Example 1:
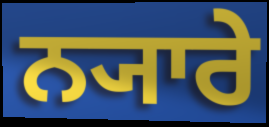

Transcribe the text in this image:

ਨ੍ਯਾਰੇ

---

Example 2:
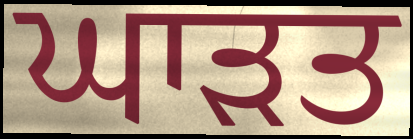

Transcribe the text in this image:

ਘਾੜਤ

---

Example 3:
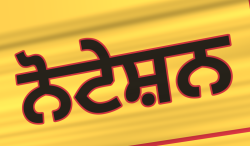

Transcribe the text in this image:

ਨੋਟੇਸ਼ਨ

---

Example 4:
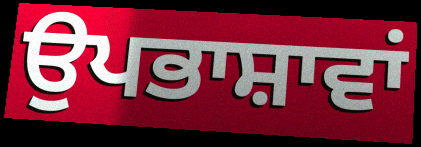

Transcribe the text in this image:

ਉਪਭਾਸ਼ਾਵਾਂ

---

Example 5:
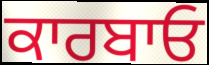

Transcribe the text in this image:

ਕਾਰਬਾਓ